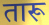
तारू